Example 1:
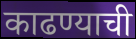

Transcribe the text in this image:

काढण्याची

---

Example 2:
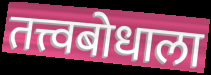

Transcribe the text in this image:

तत्त्वबोधाला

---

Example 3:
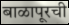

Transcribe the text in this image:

बाळापूरची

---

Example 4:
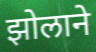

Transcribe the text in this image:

झोलाने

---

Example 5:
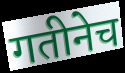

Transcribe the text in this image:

गतीनेच